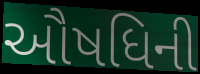
ઔષધિની